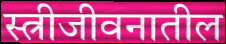
स्त्रीजीवनातील